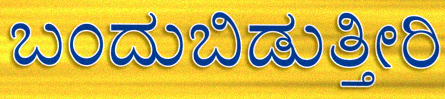
ಬಂದುಬಿಡುತ್ತೀರಿ